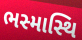
ભસ્માસ્થિ